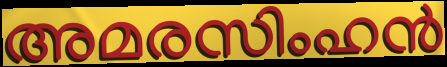
അമരസിംഹൻ